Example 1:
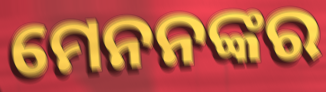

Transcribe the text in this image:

ମେନନଙ୍କର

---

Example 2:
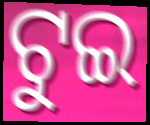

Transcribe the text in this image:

ଟୁଇ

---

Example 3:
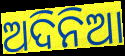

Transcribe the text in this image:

ଅଦିନିଆ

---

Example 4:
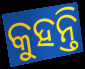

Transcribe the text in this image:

କୁହନ୍ତି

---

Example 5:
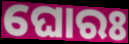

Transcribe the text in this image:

ଘୋରଃ